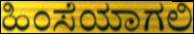
ಹಿಂಸೆಯಾಗಲಿ